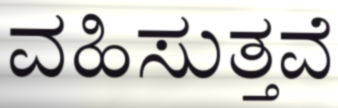
ವಹಿಸುತ್ತವೆ